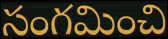
సంగమించి